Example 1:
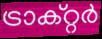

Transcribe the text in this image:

ട്രാക്റ്റർ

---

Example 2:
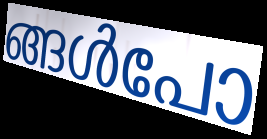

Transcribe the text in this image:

ങ്ങൾപോ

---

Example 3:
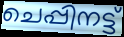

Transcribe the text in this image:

ചെപ്പിനട്ട്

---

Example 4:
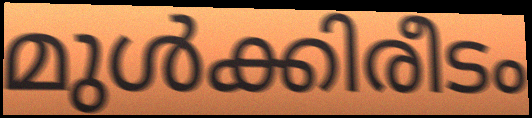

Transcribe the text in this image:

മുൾക്കിരീടം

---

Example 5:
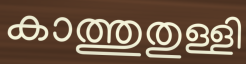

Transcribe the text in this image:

കാത്തുതുള്ളി